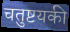
चतुष्टयकी